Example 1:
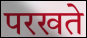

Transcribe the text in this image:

परखते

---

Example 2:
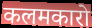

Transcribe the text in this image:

कलमकारो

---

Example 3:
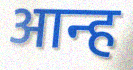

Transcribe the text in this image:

आन्ह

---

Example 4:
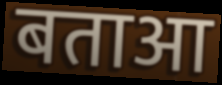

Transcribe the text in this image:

बताआ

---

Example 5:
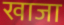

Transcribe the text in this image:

खाजा